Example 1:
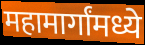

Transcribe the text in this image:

महामार्गांमध्ये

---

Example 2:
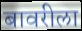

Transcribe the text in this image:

बावरीला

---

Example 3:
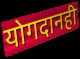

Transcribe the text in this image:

योगदानही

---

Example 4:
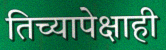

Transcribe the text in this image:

तिच्यापेक्षाही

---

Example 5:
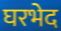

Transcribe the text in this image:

घरभेद